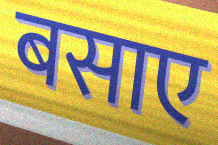
बसाए